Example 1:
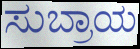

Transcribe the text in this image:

ಸುಬ್ರಾಯ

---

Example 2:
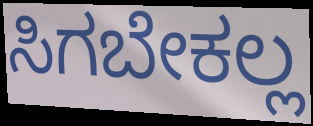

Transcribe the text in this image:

ಸಿಗಬೇಕಲ್ಲ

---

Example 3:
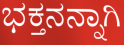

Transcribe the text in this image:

ಭಕ್ತನನ್ನಾಗಿ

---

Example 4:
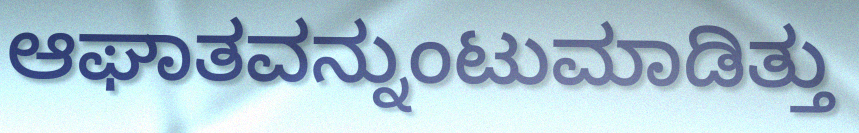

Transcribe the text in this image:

ಆಘಾತವನ್ನುಂಟುಮಾಡಿತ್ತು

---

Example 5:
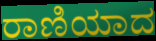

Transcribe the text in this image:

ರಾಣಿಯಾದ